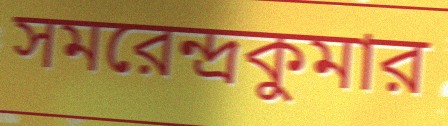
সমরেন্দ্রকুমার